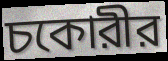
চকোরীর